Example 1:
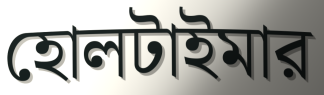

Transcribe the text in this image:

হোলটাইমার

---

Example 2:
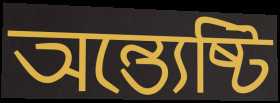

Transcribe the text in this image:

অন্ত্যেষ্টি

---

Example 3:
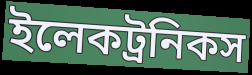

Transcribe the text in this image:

ইলেকট্রনিকস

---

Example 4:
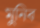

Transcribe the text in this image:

মুনিব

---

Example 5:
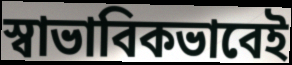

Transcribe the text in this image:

স্বাভাবিকভাবেই